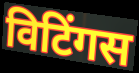
विटिंगस